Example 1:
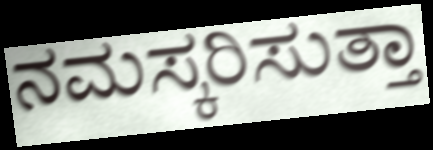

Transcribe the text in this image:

ನಮಸ್ಕರಿಸುತ್ತಾ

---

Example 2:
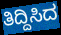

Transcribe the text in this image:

ತಿದ್ದಿಸಿದ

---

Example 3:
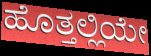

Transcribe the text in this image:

ಹೊತ್ತಲ್ಲಿಯೇ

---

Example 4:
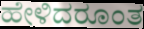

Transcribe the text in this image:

ಹೇಳಿದರೂಂತ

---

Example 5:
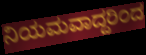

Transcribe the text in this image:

ನಿಯಮವಾದ್ದರಿಂದ